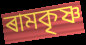
ৰামকৃষ্ণ